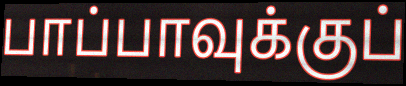
பாப்பாவுக்குப்